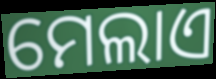
ମେଲାଏ